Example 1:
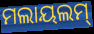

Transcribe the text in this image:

ମଲାୟଲମ୍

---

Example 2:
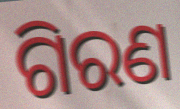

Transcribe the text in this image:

ଗିରଣ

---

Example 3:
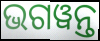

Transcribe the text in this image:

ଭଗୱନ୍ତ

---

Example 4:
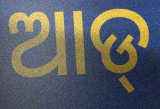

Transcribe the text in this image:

ଆଡ୍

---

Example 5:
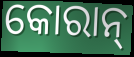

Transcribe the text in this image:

କୋରାନ୍